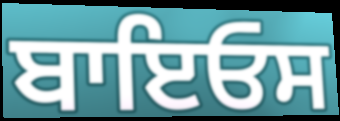
ਬਾਇਓਸ